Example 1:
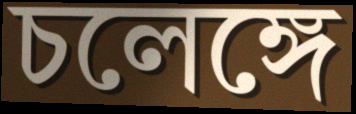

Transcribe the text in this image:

চলেঙ্গে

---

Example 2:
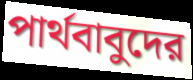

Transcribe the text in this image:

পার্থবাবুদের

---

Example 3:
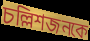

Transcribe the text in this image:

চল্লিশজনকে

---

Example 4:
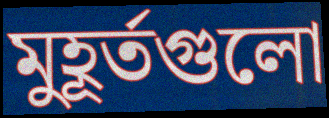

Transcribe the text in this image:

মুহূর্তগুলো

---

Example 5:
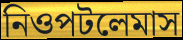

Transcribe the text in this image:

নিওপটলেমাস